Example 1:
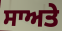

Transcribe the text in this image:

ਸਾਅਤੇ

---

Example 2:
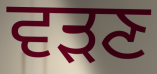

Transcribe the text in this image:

ਵੜਣ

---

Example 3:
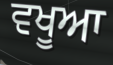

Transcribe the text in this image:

ਵਖੂਆ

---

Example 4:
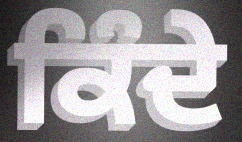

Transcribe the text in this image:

ਕਿੰਦੇ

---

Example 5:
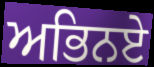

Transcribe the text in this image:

ਅਭਿਨਏ